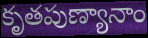
కృతపుణ్యానాం